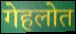
गेहलोत